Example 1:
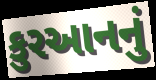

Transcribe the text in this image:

કુરઆનનું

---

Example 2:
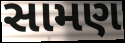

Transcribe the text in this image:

સામણ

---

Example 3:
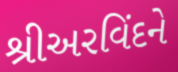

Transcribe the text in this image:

શ્રીઅરવિંદને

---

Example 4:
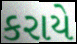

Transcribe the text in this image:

કરાયે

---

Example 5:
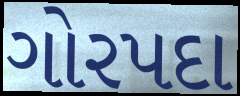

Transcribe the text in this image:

ગોરપદા